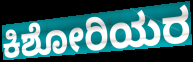
ಕಿಶೋರಿಯರ